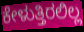
ಕೇಳುತ್ತಿರಲಿಲ್ಲ